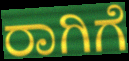
ರಾಗಿಗೆ